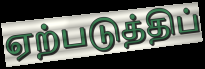
ஏற்படுத்திப்